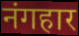
नंगहार